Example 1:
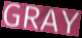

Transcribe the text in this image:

GRAY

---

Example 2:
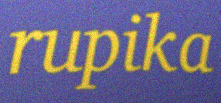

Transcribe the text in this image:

rupika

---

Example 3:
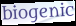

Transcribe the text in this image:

biogenic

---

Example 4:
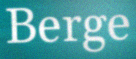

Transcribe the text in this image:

Berge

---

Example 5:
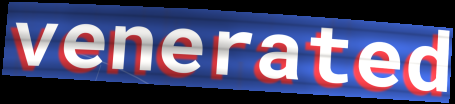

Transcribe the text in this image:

venerated